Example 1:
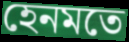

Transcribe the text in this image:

হেনমতে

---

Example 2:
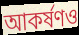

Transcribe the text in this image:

আকর্ষণও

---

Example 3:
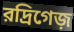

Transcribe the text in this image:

রদ্রিগেজ়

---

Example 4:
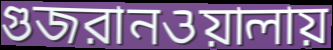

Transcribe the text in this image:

গুজরানওয়ালায়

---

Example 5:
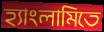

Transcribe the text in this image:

হ্যাংলামিতে